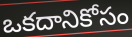
ఒకదానికోసం